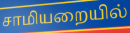
சாமியறையில்